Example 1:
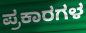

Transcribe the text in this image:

ಪ್ರಕಾರಗಳ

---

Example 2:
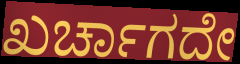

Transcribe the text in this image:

ಖರ್ಚಾಗದೇ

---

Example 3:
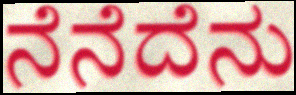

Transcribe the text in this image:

ನೆನೆದೆನು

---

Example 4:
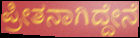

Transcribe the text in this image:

ಪ್ರೀತನಾಗಿದ್ದೇನೆ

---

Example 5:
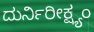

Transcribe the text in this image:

ದುರ್ನಿರೀಕ್ಷ್ಯಂ